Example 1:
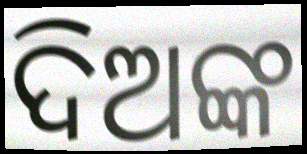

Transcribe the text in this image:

ଦିଅଙ୍କ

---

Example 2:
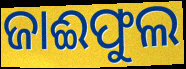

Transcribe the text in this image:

ଜାଈଫୁଲ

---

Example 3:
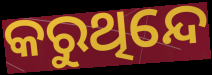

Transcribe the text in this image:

କରୁଥିନ୍ଦେ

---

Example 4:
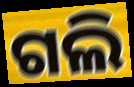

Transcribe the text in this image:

ଗଲି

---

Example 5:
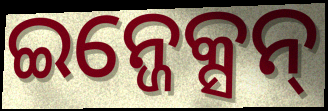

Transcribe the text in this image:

ଇନ୍ଜେକ୍ସନ୍